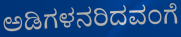
ಅಡಿಗಳನರಿದವಂಗೆ